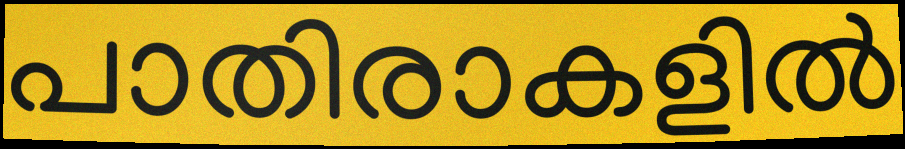
പാതിരാകളിൽ